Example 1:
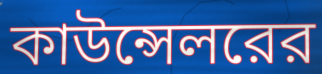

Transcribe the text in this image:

কাউন্সেলরের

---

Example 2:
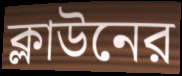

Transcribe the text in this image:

ক্লাউনের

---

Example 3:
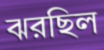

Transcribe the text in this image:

ঝরছিল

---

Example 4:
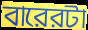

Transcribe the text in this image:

বারেরটা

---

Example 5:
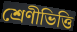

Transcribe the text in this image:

শ্রেণীভিত্তি